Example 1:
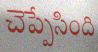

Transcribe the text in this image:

చెప్పేసింది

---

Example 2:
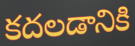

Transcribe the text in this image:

కదలడానికి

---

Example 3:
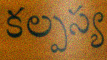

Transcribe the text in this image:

కల్పస్య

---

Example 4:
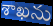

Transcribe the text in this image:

శాఖను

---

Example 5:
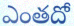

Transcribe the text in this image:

ఎంతదో